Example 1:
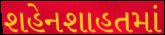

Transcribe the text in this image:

શહેનશાહતમાં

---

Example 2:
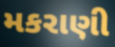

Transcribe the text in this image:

મકરાણી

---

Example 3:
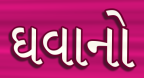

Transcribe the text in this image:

ઘવાનો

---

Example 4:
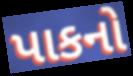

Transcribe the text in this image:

પાકનો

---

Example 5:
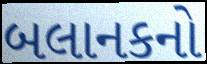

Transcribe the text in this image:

બલાનકનો